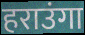
हराउंगा